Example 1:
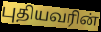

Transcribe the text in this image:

புதியவரின்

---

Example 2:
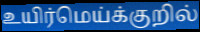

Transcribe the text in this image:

உயிர்மெய்க்குறில்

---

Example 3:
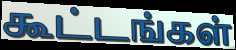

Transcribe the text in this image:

கூட்டங்கள்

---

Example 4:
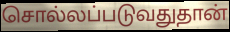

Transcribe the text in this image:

சொல்லப்படுவதுதான்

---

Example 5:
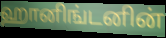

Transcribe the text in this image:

ஹானிங்டனின்